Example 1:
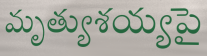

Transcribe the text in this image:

మృత్యుశయ్యపై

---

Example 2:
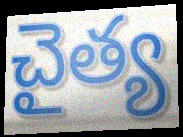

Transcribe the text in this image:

చైత్య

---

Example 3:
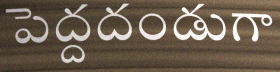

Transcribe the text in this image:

పెద్దదండుగా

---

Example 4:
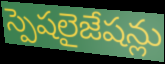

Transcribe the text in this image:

స్పెషలైజేషన్లు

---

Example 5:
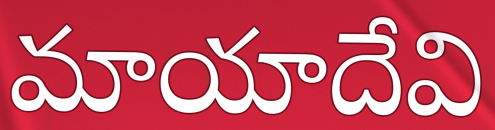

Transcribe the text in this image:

మాయాదేవి